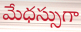
మేధస్సుగా